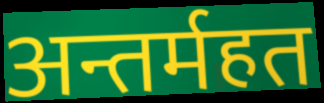
अन्तर्महत